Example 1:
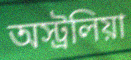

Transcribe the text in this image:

অস্ট্রলিয়া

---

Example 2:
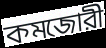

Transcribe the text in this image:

কমজোরী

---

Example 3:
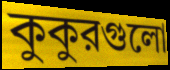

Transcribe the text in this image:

কুকুরগুলো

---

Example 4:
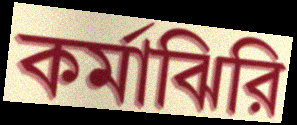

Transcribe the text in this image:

কর্মাঝিরি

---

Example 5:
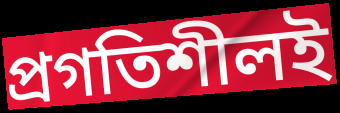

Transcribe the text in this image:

প্রগতিশীলই